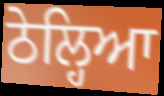
ਠੇਲ੍ਹਿਆ